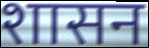
शासन